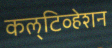
कल्टिव्हेशन